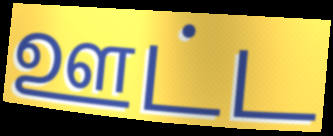
ஊட்ட